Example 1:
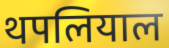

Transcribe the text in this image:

थपलियाल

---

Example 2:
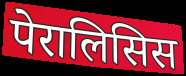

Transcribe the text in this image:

पेरालिसिस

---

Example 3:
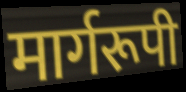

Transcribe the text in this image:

मार्गरूपी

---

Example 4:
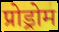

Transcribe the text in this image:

प्रोड्रोम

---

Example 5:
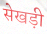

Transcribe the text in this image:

सेखड़ी